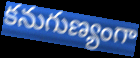
కనుగుణ్యంగా